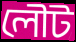
লৌট